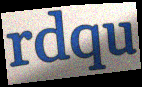
rdqu